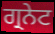
ਗ੍ਰਨੇਟ